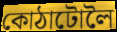
কোঠাটোলৈ